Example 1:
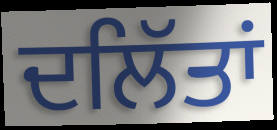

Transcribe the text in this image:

ਦਲਿੱਤਾਂ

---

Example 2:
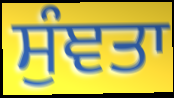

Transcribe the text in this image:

ਸੁੰਞਤਾ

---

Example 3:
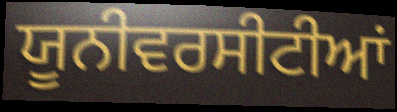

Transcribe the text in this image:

ਯੂਨੀਵਰਸੀਟੀਆਂ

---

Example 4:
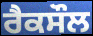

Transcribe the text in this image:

ਰੈਕਸੌਲ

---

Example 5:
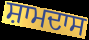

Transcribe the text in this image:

ਸ਼ਾਮਦਾਸ